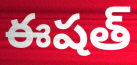
ఈషత్